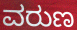
ವರುಣ